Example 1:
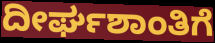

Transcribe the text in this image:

ದೀರ್ಘಶಾಂತಿಗೆ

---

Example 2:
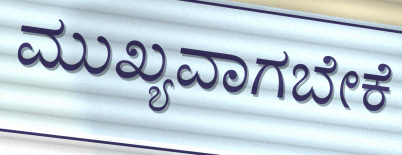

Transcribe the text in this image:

ಮುಖ್ಯವಾಗಬೇಕೆ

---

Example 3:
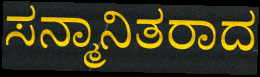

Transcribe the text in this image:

ಸನ್ಮಾನಿತರಾದ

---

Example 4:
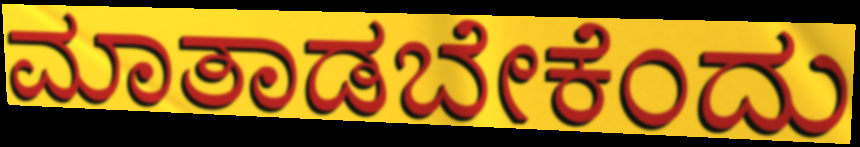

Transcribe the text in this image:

ಮಾತಾಡಬೇಕೆಂದು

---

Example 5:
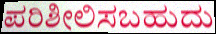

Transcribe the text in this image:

ಪರಿಶೀಲಿಸಬಹುದು